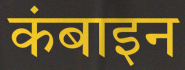
कंबाइन